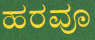
ಹರವೂ